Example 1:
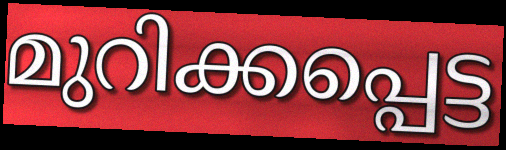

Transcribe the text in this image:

മുറിക്കപ്പെട്ട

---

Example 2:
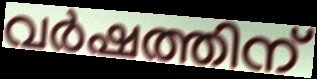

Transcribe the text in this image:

വർഷത്തിന്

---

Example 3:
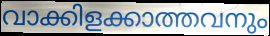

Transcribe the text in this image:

വാക്കിളക്കാത്തവനും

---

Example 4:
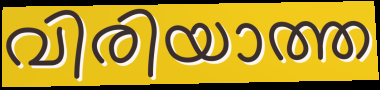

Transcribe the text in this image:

വിരിയാത്ത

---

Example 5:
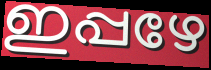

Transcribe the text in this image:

ഇപ്പഴേ